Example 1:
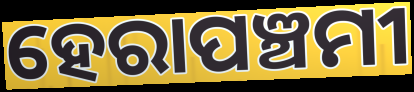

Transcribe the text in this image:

ହେରାପଞ୍ଚମୀ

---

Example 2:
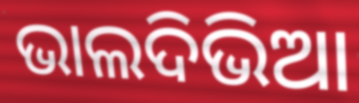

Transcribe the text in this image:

ଭାଲଦିଭିଆ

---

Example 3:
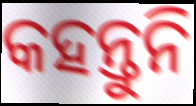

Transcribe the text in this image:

କହନ୍ତୁନି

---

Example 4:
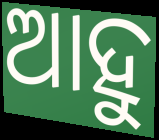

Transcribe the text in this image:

ଆହୁ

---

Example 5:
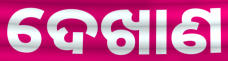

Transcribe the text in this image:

ଦେଖାଣ